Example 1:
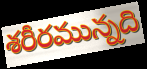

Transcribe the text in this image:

శరీరమున్నది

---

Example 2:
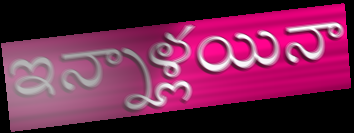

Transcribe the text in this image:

ఇన్నాళ్లయినా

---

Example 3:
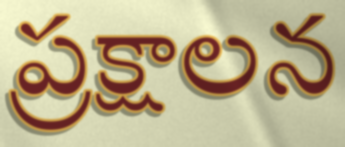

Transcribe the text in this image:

ప్రక్షాలన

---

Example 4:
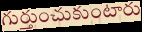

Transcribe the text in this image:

గుర్తుంచుకుంటారు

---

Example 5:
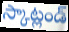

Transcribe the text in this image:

స్కాట్లండ్